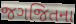
જગજિતના